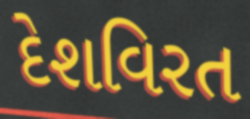
દેશવિરત